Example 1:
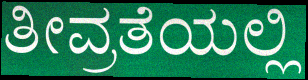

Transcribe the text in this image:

ತೀವ್ರತೆಯಲ್ಲಿ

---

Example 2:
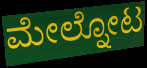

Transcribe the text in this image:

ಮೇಲ್ನೋಟ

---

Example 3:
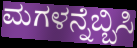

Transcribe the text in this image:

ಮಗಳನ್ನೆಬ್ಬಿಸಿ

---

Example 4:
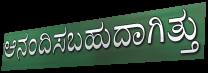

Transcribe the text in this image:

ಆನಂದಿಸಬಹುದಾಗಿತ್ತು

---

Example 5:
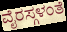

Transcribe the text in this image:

ವೈರಸ್ಗಳಂತೆ